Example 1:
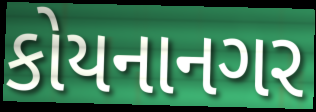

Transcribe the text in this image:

કોયનાનગર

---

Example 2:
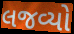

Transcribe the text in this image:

લજવ્યો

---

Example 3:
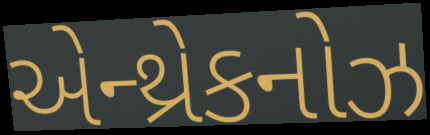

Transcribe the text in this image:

એન્થ્રેકનોઝ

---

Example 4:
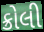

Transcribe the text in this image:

ક્રોલી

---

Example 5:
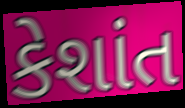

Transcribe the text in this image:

કેશાંત